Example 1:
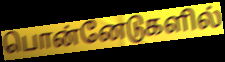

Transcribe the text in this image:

பொன்னேடுகளில்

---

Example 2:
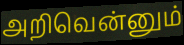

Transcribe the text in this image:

அறிவென்னும்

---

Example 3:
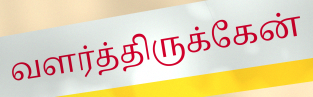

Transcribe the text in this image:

வளர்த்திருக்கேன்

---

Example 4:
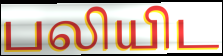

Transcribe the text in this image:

பலியிட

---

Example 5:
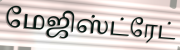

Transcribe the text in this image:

மேஜிஸ்ட்ரேட்